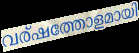
വര്ഷത്തോളമായി